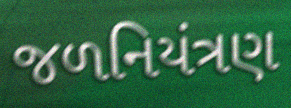
જળનિયંત્રણ